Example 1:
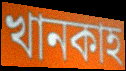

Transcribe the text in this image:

খানকাহ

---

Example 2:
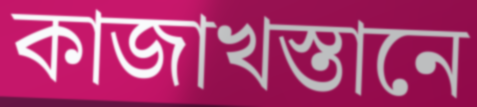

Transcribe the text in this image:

কাজাখস্তানে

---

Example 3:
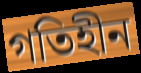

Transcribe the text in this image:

গতিহীন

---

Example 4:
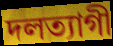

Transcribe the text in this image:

দলত্যাগী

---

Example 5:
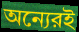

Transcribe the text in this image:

অন্যেরই